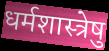
धर्मशास्त्रेषु